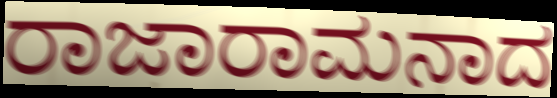
ರಾಜಾರಾಮನಾದ